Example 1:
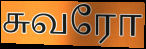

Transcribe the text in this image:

சுவரோ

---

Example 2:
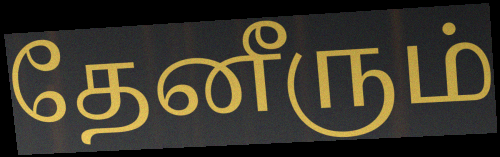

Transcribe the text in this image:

தேனீரும்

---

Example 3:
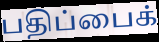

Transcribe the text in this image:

பதிப்பைக்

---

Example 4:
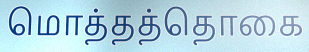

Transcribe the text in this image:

மொத்தத்தொகை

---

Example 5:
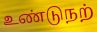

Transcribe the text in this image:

உண்டுநற்